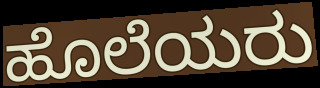
ಹೊಲೆಯರು